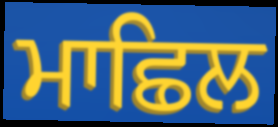
ਮਾਛਿਲ